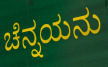
ಚೆನ್ನಯನು